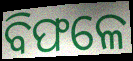
ବିଫଳେ